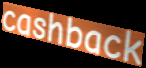
cashback